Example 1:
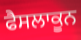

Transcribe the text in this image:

ਫੈਸਲਾਕੂਨ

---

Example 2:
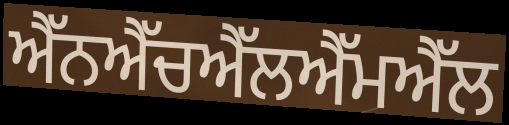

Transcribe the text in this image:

ਐੱਨਐੱਚਐੱਲਐੱਮਐੱਲ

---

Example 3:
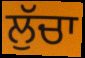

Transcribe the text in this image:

ਲੁੱਚਾ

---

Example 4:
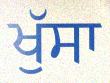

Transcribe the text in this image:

ਖੁੱਸਾ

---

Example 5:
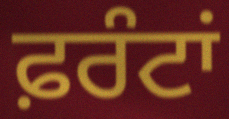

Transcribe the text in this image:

ਫ਼ਰੰਟਾਂ